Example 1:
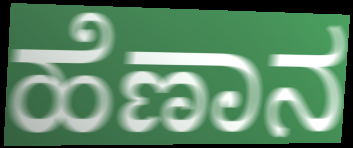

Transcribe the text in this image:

ಹೆಣಾನ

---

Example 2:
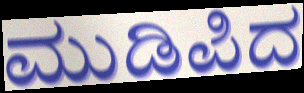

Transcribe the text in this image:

ಮುಡಿಪಿದ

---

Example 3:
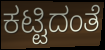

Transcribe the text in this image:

ಕಟ್ಟಿದಂತೆ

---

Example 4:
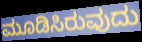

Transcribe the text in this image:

ಮೂಡಿಸಿರುವುದು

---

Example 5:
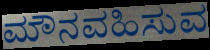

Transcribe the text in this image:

ಮೌನವಹಿಸುವ